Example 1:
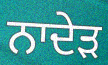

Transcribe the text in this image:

ਨਾਦੇੜ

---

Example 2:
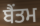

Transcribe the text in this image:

ਬੈਂਤਮ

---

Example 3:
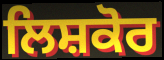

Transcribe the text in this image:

ਲਿਸ਼ਕੋਰ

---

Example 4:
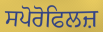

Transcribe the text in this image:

ਸਪੋਰੋਫਿਲਜ਼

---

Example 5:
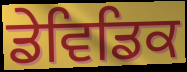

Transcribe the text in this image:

ਡੇਵਿਡਿਕ